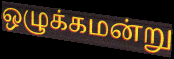
ஒழுக்கமன்று